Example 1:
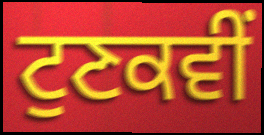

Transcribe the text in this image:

ਟੁਣਕਵੀਂ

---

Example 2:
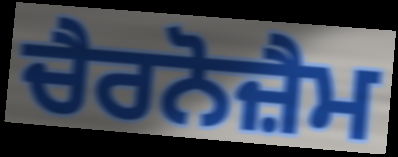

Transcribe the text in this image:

ਚੈਰਨੋਜ਼ੈਮ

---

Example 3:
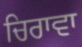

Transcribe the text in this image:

ਚਿਰਾਵਾ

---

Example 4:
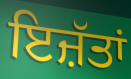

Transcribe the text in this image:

ਇਜ਼ੱਤਾਂ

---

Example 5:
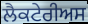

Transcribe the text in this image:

ਲੈਕਟੇਰੀਅਸ